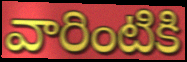
వారింటికి